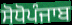
ਸੋਧੋਪੰਜਾਬ